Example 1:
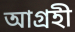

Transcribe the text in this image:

আগ্ৰহী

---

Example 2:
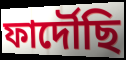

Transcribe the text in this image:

ফাৰ্দৌছি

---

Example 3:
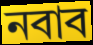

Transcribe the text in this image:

নবাব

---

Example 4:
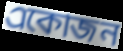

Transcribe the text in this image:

একোজন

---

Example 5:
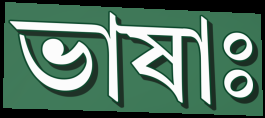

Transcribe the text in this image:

ভাষাঃ